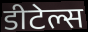
डीटेल्स